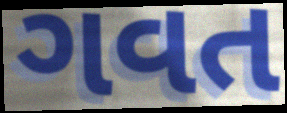
ગવત